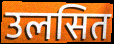
उलसित